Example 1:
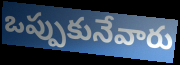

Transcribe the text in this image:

ఒప్పుకునేవారు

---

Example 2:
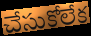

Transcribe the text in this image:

చేసుకోలేక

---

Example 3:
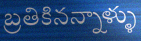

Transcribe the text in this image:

బ్రతికినన్నాళ్ళు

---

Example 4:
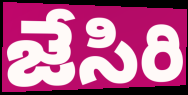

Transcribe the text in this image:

జేసిరి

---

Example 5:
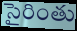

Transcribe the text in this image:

సైరింతు